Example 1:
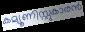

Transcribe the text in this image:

കമ്യൂണിസ്റ്റുകാരൻ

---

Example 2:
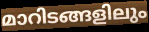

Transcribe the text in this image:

മാറിടങ്ങളിലും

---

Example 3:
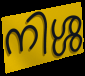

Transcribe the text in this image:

നിശ്ശ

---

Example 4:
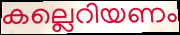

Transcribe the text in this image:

കല്ലെറിയണം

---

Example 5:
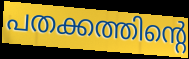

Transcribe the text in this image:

പതക്കത്തിന്റെ